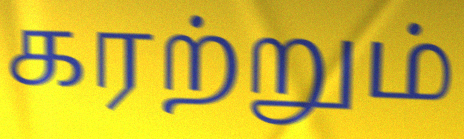
கரற்றும்